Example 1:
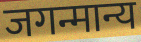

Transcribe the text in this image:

जगन्मान्य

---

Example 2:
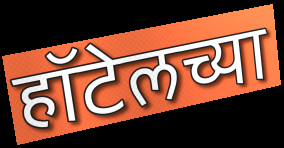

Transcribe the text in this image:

हॉटेलच्या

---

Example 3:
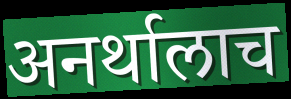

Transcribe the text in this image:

अनर्थालाच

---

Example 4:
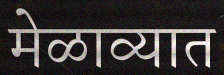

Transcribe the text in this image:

मेळाव्यात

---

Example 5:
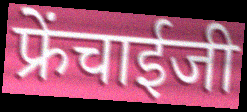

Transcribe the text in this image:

फ्रेंचाईजी